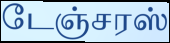
டேஞ்சரஸ்